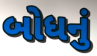
બોધનું